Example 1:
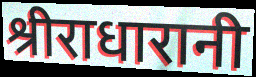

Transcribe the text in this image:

श्रीराधारानी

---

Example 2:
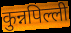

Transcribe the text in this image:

कुन्नपिल्ली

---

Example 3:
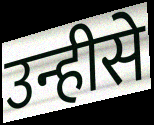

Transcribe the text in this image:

उन्हीसे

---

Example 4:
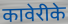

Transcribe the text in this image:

कावेरीके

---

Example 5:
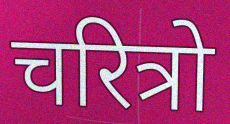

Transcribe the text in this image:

चरित्रो